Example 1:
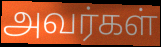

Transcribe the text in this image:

அவர்கள்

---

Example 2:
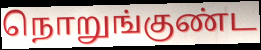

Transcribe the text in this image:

நொறுங்குண்ட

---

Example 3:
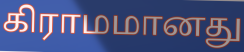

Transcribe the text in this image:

கிராமமானது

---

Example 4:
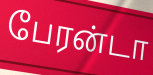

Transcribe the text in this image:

பேரன்டா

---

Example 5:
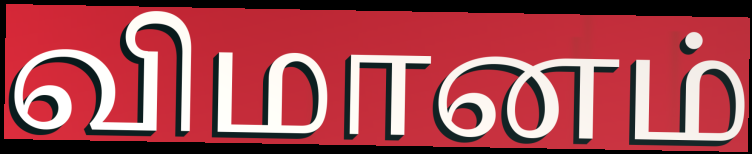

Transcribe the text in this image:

விமானம்